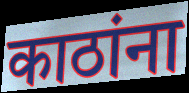
काठांना